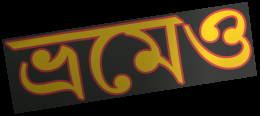
ভ্রমেও